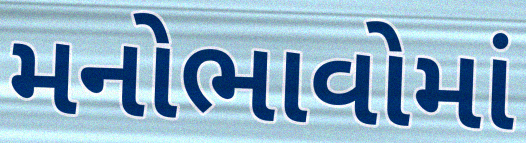
મનોભાવોમાં